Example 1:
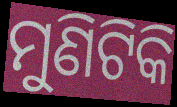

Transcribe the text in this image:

ମୁଣିଟିକି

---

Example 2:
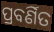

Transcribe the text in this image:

ପ୍ରବର୍ଣିତ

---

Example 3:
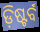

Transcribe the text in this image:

ଡ଼ିଷ୍ଟର୍ବ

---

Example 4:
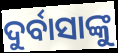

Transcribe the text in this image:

ଦୁର୍ବାସାଙ୍କୁ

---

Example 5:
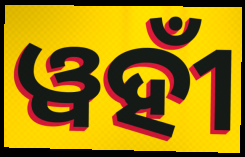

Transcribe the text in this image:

ୱହୀଁ